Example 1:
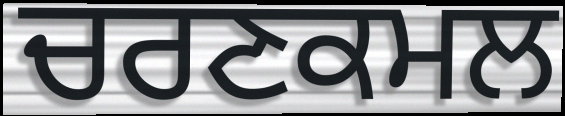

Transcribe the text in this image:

ਚਰਣਕਮਲ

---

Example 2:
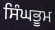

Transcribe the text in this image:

ਸਿੰਘਭੂਮ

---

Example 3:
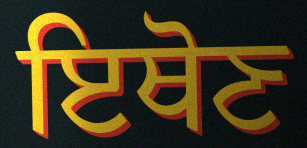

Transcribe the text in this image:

ਇਥੋਣ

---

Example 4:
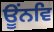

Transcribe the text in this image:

ਊਂਨਵਿ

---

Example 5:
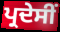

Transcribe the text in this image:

ਪ੍ਰਦੇਸੀਂ